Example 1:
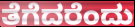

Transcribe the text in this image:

ತೆಗೆದರೆಂದು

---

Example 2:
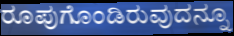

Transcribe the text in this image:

ರೂಪುಗೊಂಡಿರುವುದನ್ನೂ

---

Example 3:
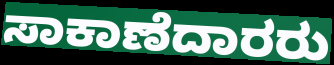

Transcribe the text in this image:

ಸಾಕಾಣೆದಾರರು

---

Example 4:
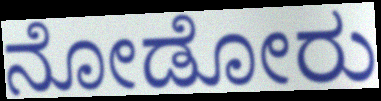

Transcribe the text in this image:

ನೋಡೋರು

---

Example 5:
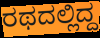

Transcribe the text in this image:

ರಥದಲ್ಲಿದ್ದ